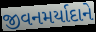
જીવનમર્યાદાને